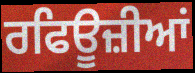
ਰਫਿਊਜ਼ੀਆਂ